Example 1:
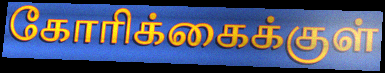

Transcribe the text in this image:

கோரிக்கைக்குள்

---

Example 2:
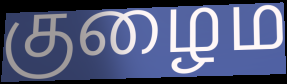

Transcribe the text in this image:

குழைம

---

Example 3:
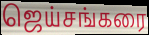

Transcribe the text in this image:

ஜெய்சங்கரை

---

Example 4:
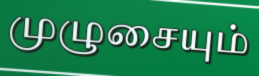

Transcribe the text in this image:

முழுசையும்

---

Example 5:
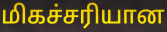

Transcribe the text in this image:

மிகச்சரியான